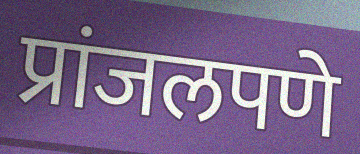
प्रांजलपणे